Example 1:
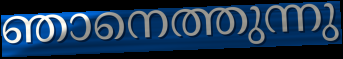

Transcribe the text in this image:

ഞാനെത്തുന്നു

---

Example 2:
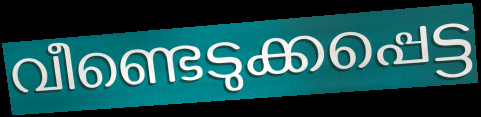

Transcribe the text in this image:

വീണ്ടെടുക്കപ്പെട്ട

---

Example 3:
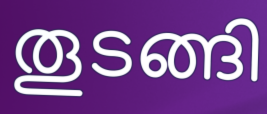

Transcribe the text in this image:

തൂടങ്ങി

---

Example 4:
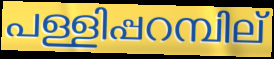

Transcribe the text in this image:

പള്ളിപ്പറമ്പില്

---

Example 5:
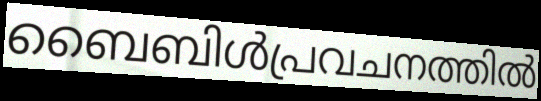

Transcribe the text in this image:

ബൈബിൾപ്രവചനത്തിൽ